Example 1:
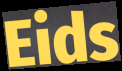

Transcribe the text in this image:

Eids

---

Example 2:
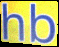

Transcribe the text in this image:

hb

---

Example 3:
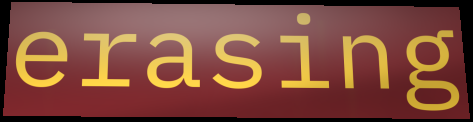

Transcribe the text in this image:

erasing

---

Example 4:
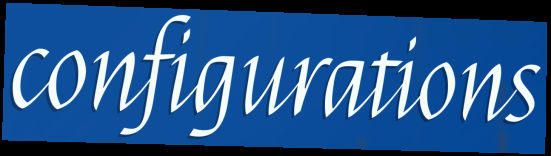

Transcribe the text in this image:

configurations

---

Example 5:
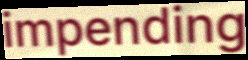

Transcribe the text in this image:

impending